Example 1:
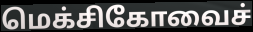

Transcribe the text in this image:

மெக்சிகோவைச்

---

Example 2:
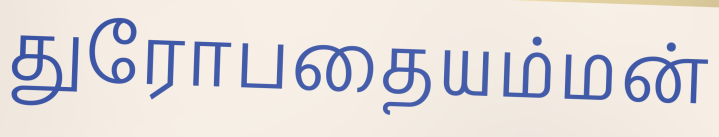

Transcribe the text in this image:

துரோபதையம்மன்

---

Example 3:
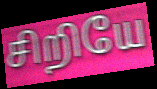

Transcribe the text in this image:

சிறியே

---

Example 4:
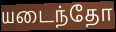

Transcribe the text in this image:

யடைந்தோ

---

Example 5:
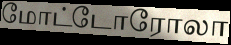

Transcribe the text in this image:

மோட்டோரோலா